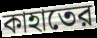
কাহাতের